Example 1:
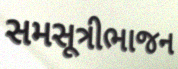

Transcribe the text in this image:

સમસૂત્રીભાજન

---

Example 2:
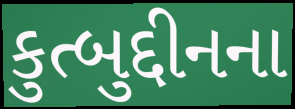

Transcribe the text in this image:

કુત્બુદ્દીનના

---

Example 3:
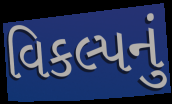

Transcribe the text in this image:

વિકલ્પનું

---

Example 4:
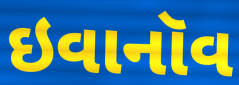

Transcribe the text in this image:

ઇવાનૉવ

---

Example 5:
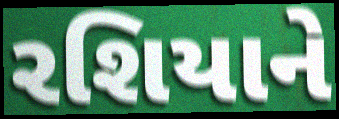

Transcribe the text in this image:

રશિયાને